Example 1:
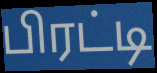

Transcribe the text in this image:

பிரட்டி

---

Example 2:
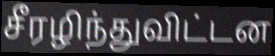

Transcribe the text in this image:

சீரழிந்துவிட்டன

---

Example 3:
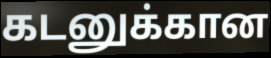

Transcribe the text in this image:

கடனுக்கான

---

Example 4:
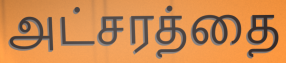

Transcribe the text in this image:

அட்சரத்தை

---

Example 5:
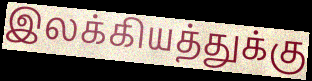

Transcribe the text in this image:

இலக்கியத்துக்கு